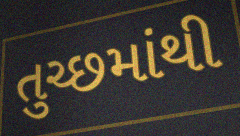
તુચ્છમાંથી